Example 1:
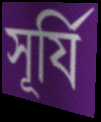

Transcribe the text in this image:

সূর্যি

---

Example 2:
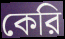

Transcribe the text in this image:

কেরি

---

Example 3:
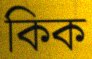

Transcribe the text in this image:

কিক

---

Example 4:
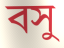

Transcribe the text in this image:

বসু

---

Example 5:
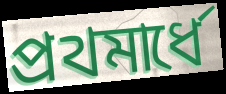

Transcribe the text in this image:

প্রথমার্ধে